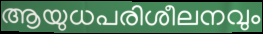
ആയുധപരിശീലനവും